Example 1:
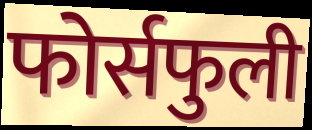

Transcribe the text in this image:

फोर्सफुली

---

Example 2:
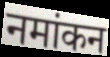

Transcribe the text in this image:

नमांकन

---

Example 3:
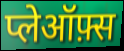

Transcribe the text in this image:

प्लेऑफ़्स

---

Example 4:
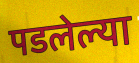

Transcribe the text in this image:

पडलेल्या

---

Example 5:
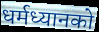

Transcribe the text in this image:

धर्मध्यानको